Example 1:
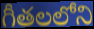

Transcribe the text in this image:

గీతలలోని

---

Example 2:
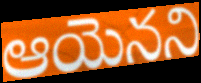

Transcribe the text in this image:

ఆయెనని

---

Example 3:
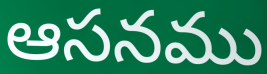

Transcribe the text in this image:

ఆసనము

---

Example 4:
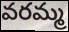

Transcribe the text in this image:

వరమ్మ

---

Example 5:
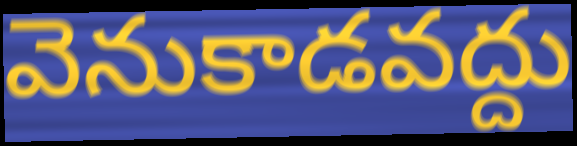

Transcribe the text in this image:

వెనుకాడవద్దు